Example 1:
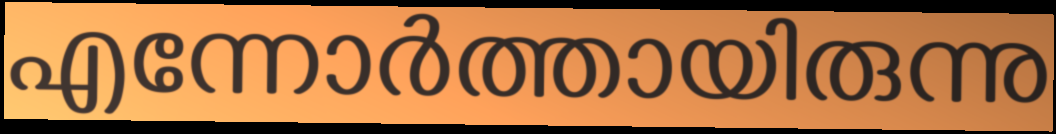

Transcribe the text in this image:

എന്നോർത്തായിരുന്നു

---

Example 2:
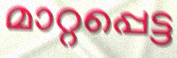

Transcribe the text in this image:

മാറ്റപ്പെട്ട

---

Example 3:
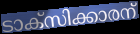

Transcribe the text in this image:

ടാക്സിക്കാരന്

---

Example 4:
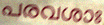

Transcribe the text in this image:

പരവശാഃ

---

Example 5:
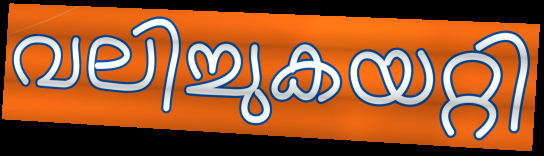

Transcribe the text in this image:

വലിച്ചുകയറ്റി